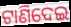
ଟାଣିଦେଇ